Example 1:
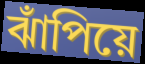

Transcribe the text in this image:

ঝাঁপিয়ে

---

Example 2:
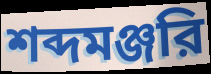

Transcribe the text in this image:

শব্দমঞ্জরি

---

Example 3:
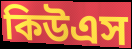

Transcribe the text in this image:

কিউএস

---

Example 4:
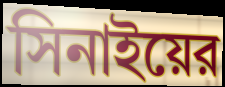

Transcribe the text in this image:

সিনাইয়ের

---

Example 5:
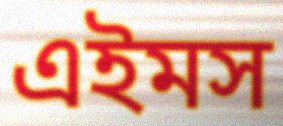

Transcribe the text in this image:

এইমস